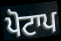
ਪੋਟਾਪ